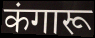
कंगारू